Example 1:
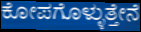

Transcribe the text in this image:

ಕೋಪಗೊಳ್ಳುತ್ತೇನೆ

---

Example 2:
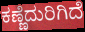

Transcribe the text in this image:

ಕಣ್ಣೆದುರಿಗಿದೆ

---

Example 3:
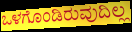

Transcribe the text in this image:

ಒಳಗೊಂಡಿರುವುದಿಲ್ಲ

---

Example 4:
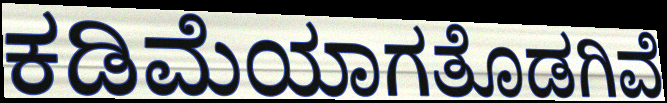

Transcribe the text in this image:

ಕಡಿಮೆಯಾಗತೊಡಗಿವೆ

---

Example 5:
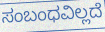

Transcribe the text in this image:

ಸಂಬಂಧವಿಲ್ಲದೆ